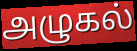
அழுகல்